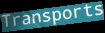
Transports